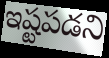
ఇష్టపడని